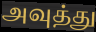
அவுத்து